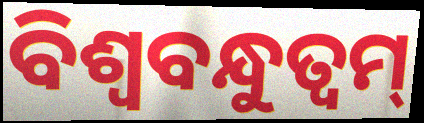
ବିଶ୍ଵବନ୍ଧୁତ୍ଵମ୍